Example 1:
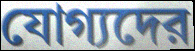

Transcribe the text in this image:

যোগ্যদের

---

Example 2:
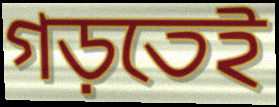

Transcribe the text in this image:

গড়তেই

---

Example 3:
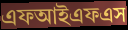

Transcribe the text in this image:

এফআইএফএস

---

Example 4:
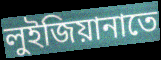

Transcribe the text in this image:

লুইজিয়ানাতে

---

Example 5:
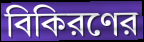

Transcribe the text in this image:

বিকিরণের